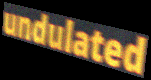
undulated